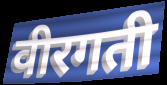
वीरगती